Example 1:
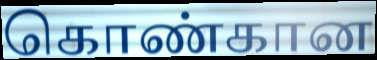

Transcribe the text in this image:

கொண்கான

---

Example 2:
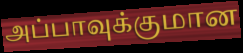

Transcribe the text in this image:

அப்பாவுக்குமான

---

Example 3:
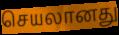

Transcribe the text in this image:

செயலானது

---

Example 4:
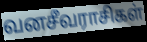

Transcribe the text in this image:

வனசீவராசிகள்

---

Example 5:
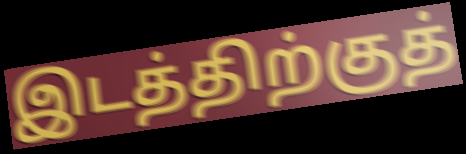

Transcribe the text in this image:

இடத்திற்குத்